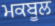
ਮਕਬੂਲ